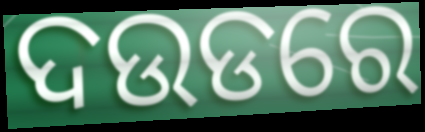
ଦଉଡରେ